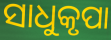
ସାଧୁକୃପା